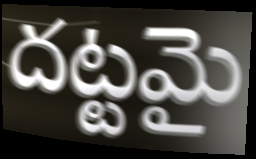
దట్టమై